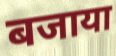
बजाया